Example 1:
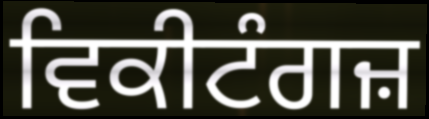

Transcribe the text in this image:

ਵਿਕੀਟੰਗਜ਼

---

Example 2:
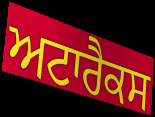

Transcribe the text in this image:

ਅਟਾਰੈਕਸ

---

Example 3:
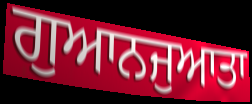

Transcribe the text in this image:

ਗੁਆਨਜੁਆਤਾ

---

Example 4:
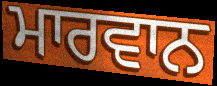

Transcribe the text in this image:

ਮਾਰਵਾਨ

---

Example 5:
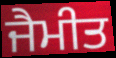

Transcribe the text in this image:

ਜੈਮੀਤ